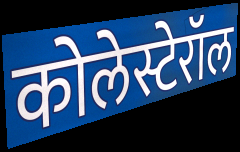
कोलेस्टेरॉल